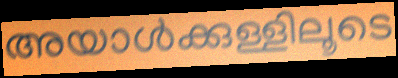
അയാൾക്കുള്ളിലൂടെ